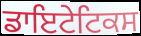
ਡਾਇਟੇਟਿਕਸ